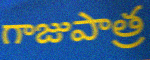
గాజుపాత్ర